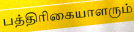
பத்திரிகையாளரும்